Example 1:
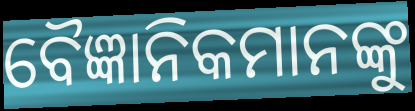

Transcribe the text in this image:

ବୈଜ୍ଞାନିକମାନଙ୍କୁ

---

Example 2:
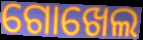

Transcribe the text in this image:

ଗୋଖେଲ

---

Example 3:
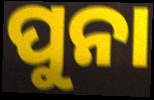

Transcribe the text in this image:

ପୁନା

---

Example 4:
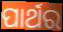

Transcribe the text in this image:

ପାର୍ଥର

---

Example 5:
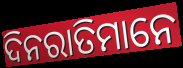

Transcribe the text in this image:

ଦିନରାତିମାନେ